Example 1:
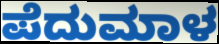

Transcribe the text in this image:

ಪೆದುಮಾಳ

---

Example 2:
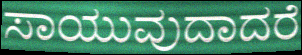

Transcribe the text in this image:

ಸಾಯುವುದಾದರೆ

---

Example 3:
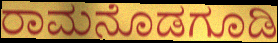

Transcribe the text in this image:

ರಾಮನೊಡಗೂಡಿ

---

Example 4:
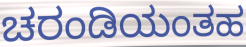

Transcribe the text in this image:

ಚರಂಡಿಯಂತಹ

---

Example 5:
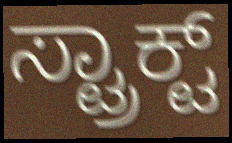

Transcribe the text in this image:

ಸ್ಟ್ರಾಕ್ಟ್